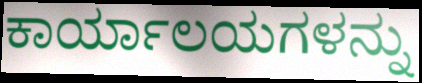
ಕಾರ್ಯಾಲಯಗಳನ್ನು